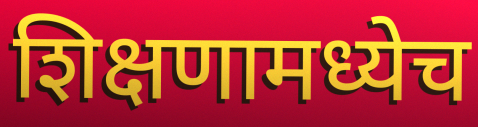
शिक्षणामध्येच